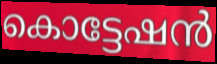
കൊട്ടേഷൻ